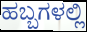
ಹಬ್ಬಗಳಲ್ಲಿ